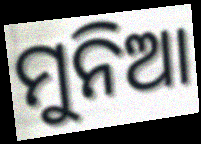
ମୁନିଆ